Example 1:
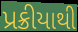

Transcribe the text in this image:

પ્રક્રીયાથી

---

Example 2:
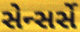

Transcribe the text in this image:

સેન્સર્સે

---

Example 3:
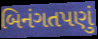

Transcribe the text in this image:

બિનંગતપણું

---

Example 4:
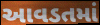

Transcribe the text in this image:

આવડતમાં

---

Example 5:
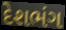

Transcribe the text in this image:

દેશભંગ